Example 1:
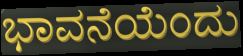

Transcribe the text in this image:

ಭಾವನೆಯೆಂದು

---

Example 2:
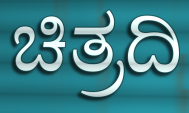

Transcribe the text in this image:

ಚಿತ್ರದಿ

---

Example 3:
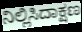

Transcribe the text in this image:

ನಿಲ್ಲಿಸಿದಾಕ್ಷಣ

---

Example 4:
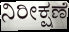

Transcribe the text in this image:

ನಿರೀಕ್ಷಣೆ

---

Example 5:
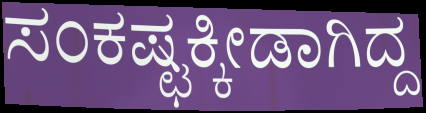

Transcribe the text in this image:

ಸಂಕಷ್ಟಕ್ಕೀಡಾಗಿದ್ದ